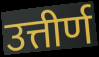
उत्तीर्ण